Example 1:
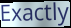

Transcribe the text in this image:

Exactly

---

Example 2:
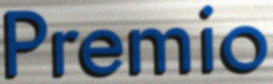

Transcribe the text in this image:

Premio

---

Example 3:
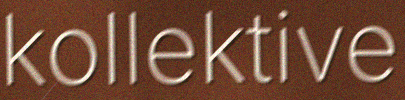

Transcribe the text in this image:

kollektive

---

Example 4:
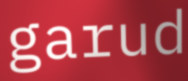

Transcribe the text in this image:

garud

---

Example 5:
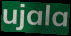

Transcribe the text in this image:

ujala